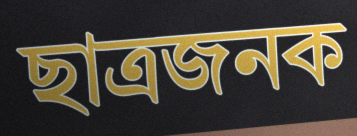
ছাত্ৰজনক